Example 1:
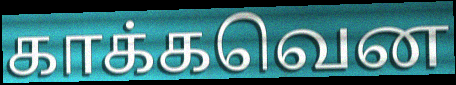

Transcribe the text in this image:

காக்கவென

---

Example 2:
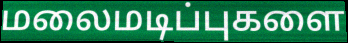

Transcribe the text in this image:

மலைமடிப்புகளை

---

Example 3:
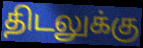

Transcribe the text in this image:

திடலுக்கு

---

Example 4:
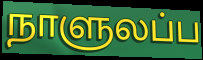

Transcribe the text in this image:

நாளுலப்ப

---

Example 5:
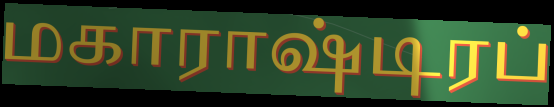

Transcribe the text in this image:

மகாராஷ்டிரப்